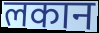
लकान